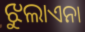
ଝୁଲାଏନା